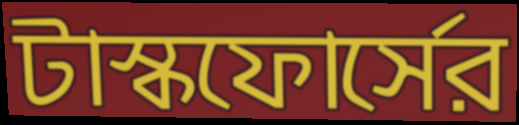
টাস্কফোর্সের